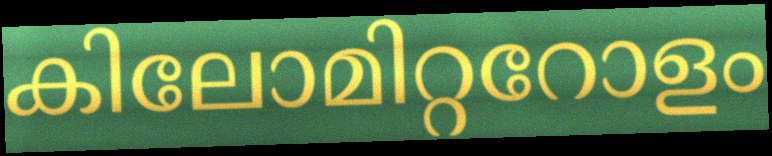
കിലോമിറ്ററോളം